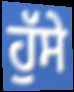
ਹੁੱਸੇ